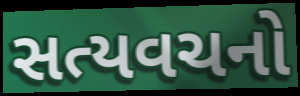
સત્યવચનો